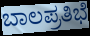
ಬಾಲಪ್ರತಿಭೆ